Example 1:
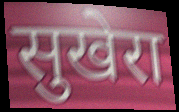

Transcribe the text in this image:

सुखेरा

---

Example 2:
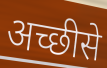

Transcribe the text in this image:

अच्छीसे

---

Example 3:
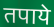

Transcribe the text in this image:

तपाये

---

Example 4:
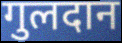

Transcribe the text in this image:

गुलदान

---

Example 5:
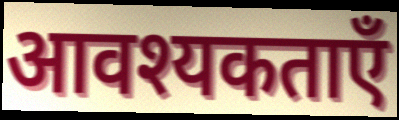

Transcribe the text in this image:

आवश्यकताएँ